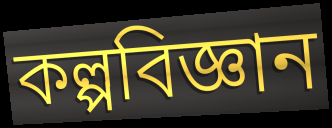
কল্পবিজ্ঞান